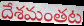
దేశమంతట